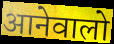
आनेवालो